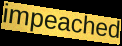
impeached